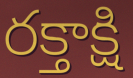
రక్తాక్షి